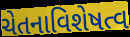
ચેતનાવિશેષત્વ